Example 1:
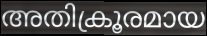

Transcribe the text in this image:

അതിക്രൂരമായ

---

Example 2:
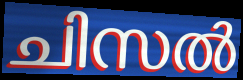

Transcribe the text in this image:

ചിസൽ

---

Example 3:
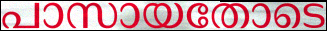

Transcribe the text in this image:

പാസായതോടെ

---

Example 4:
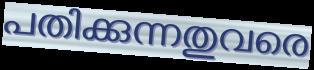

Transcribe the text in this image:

പതിക്കുന്നതുവരെ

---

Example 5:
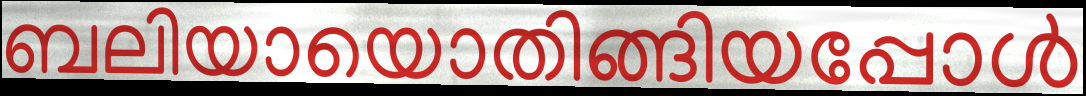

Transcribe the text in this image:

ബലിയായൊതിങ്ങിയപ്പോൾ